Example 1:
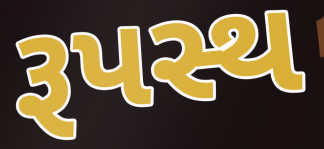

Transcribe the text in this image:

રૂપસ્થ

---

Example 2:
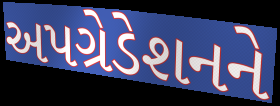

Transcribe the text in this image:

અપગ્રેડેશનને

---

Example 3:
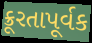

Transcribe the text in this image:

ક્રૂરતાપૂર્વક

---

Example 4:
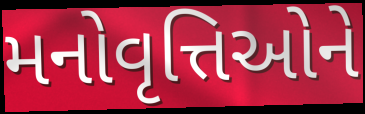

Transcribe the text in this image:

મનોવૃત્તિઓને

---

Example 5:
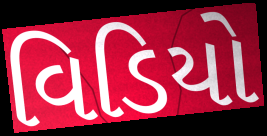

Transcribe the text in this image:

વિડિયો